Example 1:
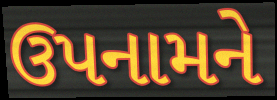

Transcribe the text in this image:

ઉપનામને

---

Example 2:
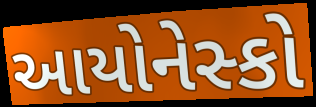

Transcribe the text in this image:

આયોનેસ્કો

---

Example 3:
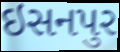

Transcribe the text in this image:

ઇસનપુર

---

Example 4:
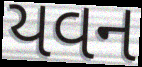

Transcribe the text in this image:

યવન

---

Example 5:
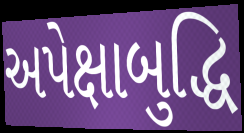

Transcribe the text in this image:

અપેક્ષાબુદ્ધિ